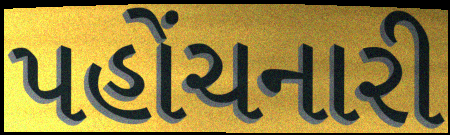
પહોંચનારી